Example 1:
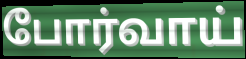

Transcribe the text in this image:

போர்வாய்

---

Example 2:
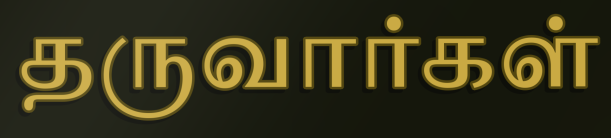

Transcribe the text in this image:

தருவார்கள்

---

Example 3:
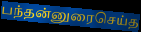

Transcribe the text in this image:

பந்தன்னுரைசெய்த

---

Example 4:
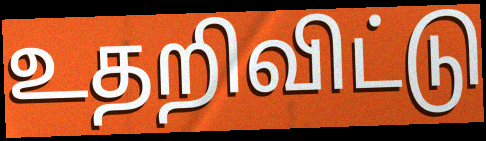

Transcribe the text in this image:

உதறிவிட்டு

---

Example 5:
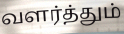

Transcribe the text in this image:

வளர்த்தும்